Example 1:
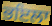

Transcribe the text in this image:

ਭਇਲਾ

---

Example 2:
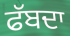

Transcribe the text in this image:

ਫੱਬਦਾ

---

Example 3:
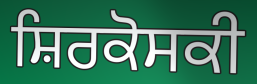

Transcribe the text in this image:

ਸ਼ਿਰਕੋਸਕੀ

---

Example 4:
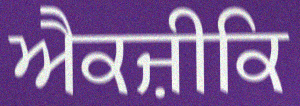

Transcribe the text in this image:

ਐਕਜ਼ੀਕਿ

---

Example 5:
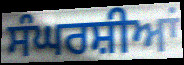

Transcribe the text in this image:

ਸੰਘਰਸ਼ੀਆਂ